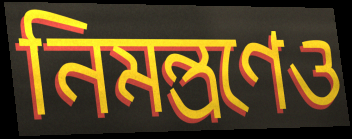
নিমন্ত্রণেও